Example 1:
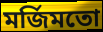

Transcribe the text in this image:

মর্জিমতো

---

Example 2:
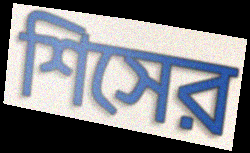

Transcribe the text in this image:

শিসের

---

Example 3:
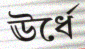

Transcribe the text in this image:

ঊর্ধে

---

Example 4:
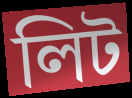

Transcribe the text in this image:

লিট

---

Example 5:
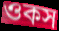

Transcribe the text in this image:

ওকস